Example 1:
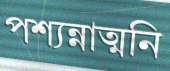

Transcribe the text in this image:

পশ্যন্নাত্মনি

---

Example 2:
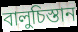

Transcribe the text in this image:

বালুচিস্তান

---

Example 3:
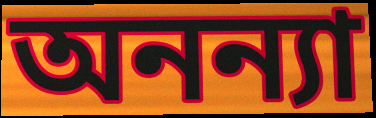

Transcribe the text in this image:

অনন্যা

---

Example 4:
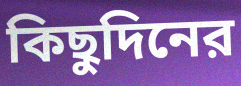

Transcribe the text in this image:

কিছুদিনের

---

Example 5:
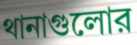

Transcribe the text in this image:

থানাগুলোর